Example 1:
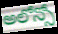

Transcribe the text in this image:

అలోన్సో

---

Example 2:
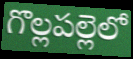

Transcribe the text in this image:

గొల్లపల్లెలో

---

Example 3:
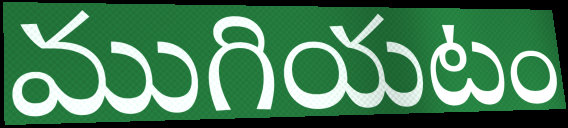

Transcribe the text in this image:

ముగియటం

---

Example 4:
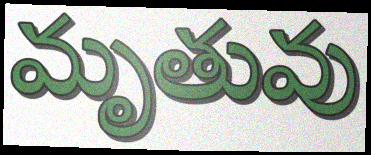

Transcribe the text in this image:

మృతువు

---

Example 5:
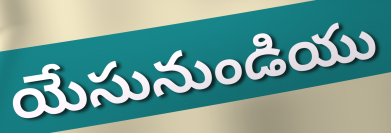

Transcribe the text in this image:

యేసునుండియు